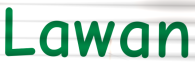
Lawan